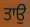
ਤਾਉ